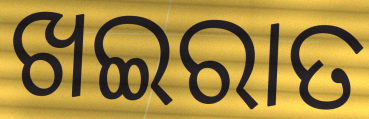
ଖଇରାତ